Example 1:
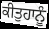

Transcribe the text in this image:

ਕੀਤੁਹਾਨੂੰ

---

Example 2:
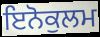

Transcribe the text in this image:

ਇਨੋਕੁਲਮ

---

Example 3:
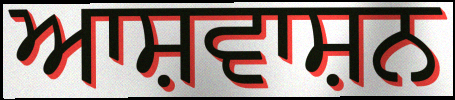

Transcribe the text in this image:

ਆਸ਼ਵਾਸ਼ਨ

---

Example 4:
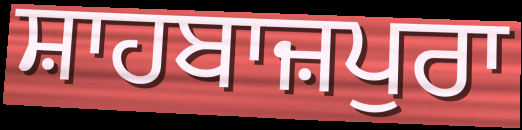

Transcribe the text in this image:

ਸ਼ਾਹਬਾਜ਼ਪੁਰਾ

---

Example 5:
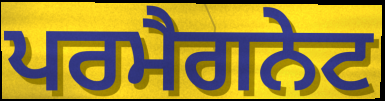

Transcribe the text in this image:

ਪਰਮੈਗਨੇਟ